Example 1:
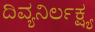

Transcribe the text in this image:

ದಿವ್ಯನಿರ್ಲಕ್ಷ್ಯ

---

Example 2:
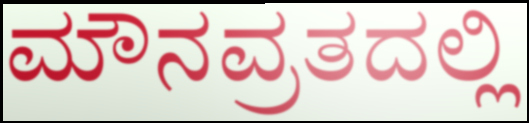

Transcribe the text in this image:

ಮೌನವ್ರತದಲ್ಲಿ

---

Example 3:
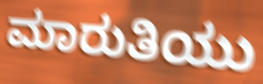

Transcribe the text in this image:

ಮಾರುತಿಯು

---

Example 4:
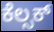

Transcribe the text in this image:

ಕೆಲ್ಸಕ್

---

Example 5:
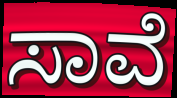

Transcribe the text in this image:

ಸಾವೆ